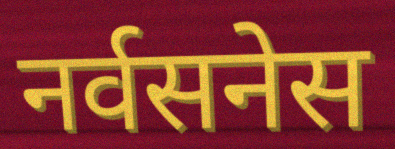
नर्वसनेस